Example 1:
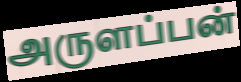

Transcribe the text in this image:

அருளப்பன்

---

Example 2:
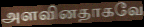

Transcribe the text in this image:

அளவினதாகவே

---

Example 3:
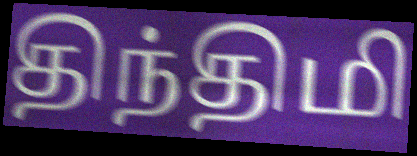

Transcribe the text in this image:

திந்திமி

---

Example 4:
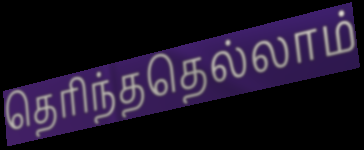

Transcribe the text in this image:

தெரிந்ததெல்லாம்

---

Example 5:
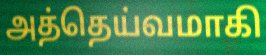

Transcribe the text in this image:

அத்தெய்வமாகி